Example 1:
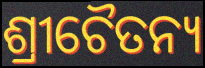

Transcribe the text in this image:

ଶ୍ରୀଚୈତନ୍ୟ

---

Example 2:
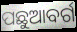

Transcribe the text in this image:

ପଛୁଆବର୍ଗ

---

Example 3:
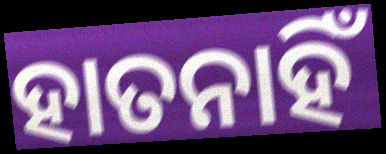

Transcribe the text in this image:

ହାତନାହିଁ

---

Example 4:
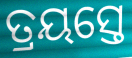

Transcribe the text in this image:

ତ୍ରୟସ୍ତେ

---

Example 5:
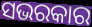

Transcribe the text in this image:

ସଭରକାର